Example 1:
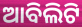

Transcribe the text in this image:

ଆବିଲିଟି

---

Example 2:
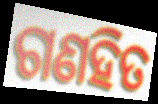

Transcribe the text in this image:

ଗଣହିତ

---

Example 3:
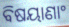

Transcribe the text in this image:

ବିଷୟାଣାଂ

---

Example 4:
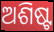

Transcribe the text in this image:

ଅଶିଷ୍ଟ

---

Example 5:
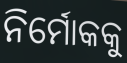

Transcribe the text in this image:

ନିର୍ମୋକକୁ